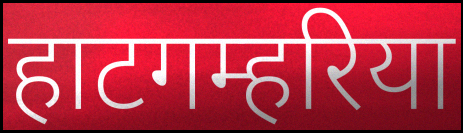
हाटगम्हरिया